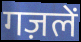
गज़लें